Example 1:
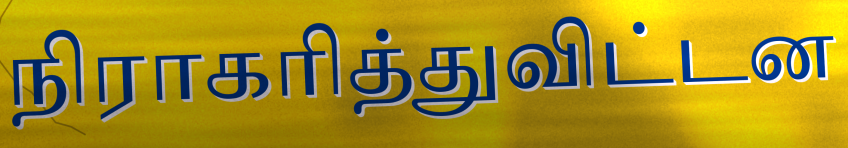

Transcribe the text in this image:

நிராகரித்துவிட்டன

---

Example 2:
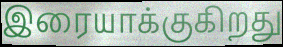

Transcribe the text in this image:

இரையாக்குகிறது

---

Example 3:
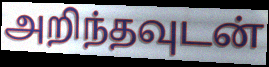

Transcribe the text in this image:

அறிந்தவுடன்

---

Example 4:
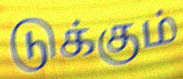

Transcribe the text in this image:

டுக்கும்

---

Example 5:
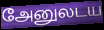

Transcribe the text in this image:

அேனுலடய